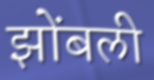
झोंबली